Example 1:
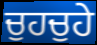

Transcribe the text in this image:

ਚੁਹਚੁਹੇ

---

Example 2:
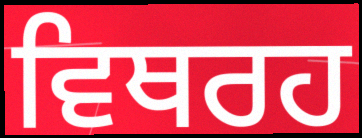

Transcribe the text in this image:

ਵਿਥਰਹ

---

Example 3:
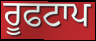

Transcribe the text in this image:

ਰੂਫਟਾਪ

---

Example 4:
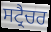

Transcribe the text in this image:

ਸਟ੍ਰੈਚਰ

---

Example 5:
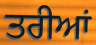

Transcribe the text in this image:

ਤਰੀਆਂ